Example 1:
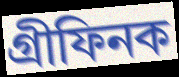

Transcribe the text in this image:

গ্ৰীফিনক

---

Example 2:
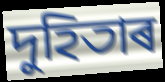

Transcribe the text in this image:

দুহিতাৰ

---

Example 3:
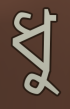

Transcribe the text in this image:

ধু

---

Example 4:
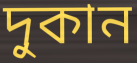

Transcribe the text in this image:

দুকান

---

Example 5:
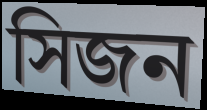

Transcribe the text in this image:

সিজন